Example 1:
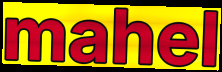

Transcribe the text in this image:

mahel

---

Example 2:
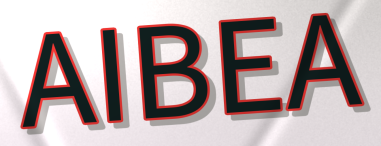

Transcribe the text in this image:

AIBEA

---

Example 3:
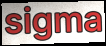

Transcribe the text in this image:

sigma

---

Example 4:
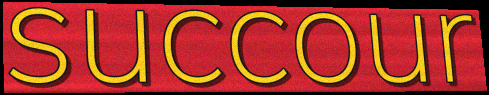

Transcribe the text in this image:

succour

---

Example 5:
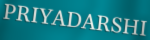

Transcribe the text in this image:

PRIYADARSHI